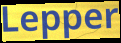
Lepper